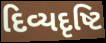
દિવ્યદૃષ્ટિ